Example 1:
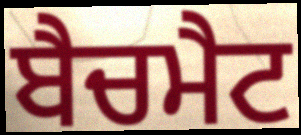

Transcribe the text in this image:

ਬੈਚਮੈਟ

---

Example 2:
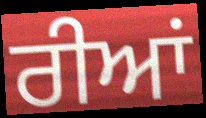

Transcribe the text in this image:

ਰੀਆਂ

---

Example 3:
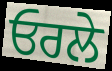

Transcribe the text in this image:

ਓਰਲੇ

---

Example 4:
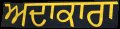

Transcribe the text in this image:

ਅਦਾਕਾਰਾ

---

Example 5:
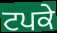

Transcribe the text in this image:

ਟਪਕੇ